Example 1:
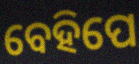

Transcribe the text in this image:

ବେହିପେ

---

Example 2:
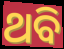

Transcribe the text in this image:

ଥବି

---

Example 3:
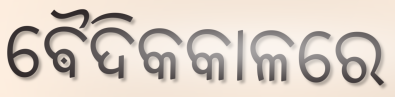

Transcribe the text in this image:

ଵୈଦିକକାଳରେ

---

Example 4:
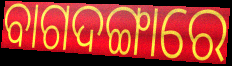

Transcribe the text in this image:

ବାଗଦଙ୍ଗାରେ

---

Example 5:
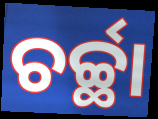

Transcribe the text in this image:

ଚର୍ଚ୍ଛା